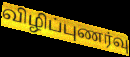
விழிப்புணர்வு